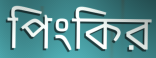
পিংকির